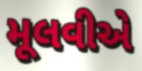
મૂલવીએ